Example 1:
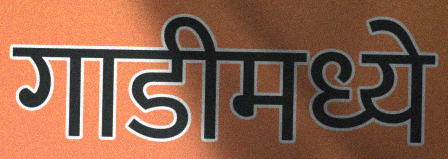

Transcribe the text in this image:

गाडीमध्ये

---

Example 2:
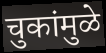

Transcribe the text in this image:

चुकांमुळे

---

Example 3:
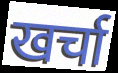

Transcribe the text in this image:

खर्चा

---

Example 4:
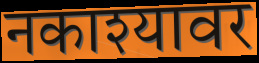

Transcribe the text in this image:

नकाश्यावर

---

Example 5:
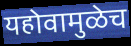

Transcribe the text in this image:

यहोवामुळेच